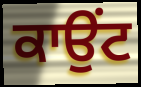
ਕਾਉਂਟ